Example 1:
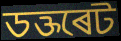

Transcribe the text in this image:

ডক্তৰেট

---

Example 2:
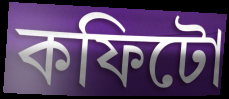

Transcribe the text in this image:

কফিটো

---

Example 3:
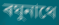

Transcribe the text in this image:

ৰঘুনাথে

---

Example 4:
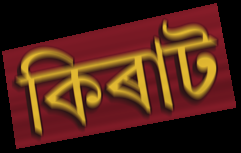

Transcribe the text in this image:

কিৰাট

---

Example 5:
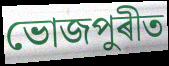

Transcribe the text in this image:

ভোজপুৰীত